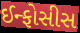
ઈન્ફોસીસ